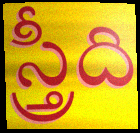
స్త్రీది